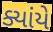
ક્યાંયે